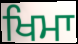
ਖਿਮਾ